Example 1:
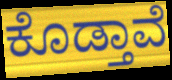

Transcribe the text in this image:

ಕೊಡ್ತಾವೆ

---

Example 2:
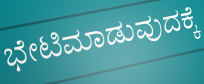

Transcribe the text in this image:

ಭೇಟಿಮಾಡುವುದಕ್ಕೆ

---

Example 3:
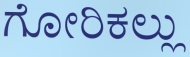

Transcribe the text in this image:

ಗೋರಿಕಲ್ಲು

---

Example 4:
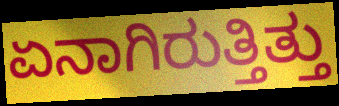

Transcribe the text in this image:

ಏನಾಗಿರುತ್ತಿತ್ತು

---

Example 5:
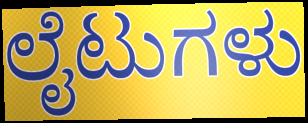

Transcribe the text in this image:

ಲೈಟುಗಳು